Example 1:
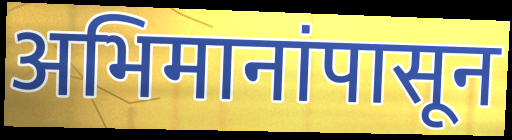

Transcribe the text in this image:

अभिमानांपासून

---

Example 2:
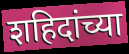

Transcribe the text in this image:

शहिदांच्या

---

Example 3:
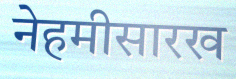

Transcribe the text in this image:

नेहमीसारख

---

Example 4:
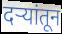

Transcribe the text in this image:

दऱ्यांतून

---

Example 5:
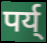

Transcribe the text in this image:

पर्य्